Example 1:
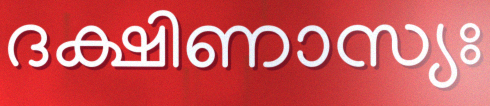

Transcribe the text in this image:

ദക്ഷിണാസ്യഃ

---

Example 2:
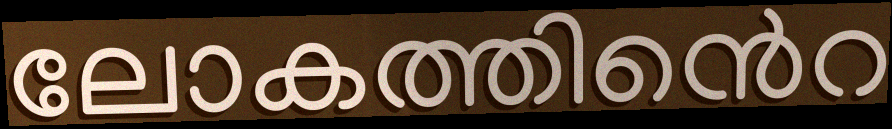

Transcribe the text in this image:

ലോകത്തിൻെറ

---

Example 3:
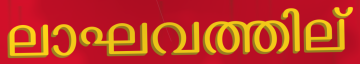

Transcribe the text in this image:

ലാഘവത്തില്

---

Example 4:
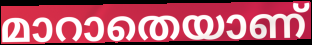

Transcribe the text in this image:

മാറാതെയാണ്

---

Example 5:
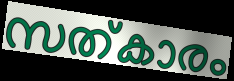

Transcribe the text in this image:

സത്കാരം